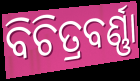
ବିଚିତ୍ରବର୍ଣ୍ଣା